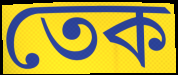
তেক